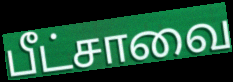
பீட்சாவை